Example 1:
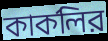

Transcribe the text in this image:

কার্কলির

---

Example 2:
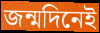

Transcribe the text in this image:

জন্মদিনেই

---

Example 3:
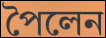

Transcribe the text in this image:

পৈলেন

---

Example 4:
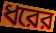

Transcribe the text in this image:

ধরের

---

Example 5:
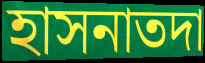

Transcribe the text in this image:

হাসনাতদা